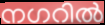
നഗറിൽ